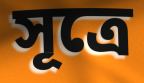
সূত্ৰে